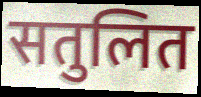
सतुलित